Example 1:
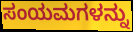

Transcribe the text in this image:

ಸಂಯಮಗಳನ್ನು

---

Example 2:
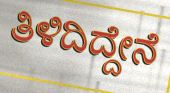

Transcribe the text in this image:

ತಿಳಿದಿದ್ದೇನೆ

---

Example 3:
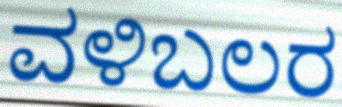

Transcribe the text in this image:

ವಳಿಬಲರ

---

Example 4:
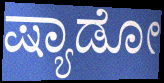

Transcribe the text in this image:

ಷ್ಯಾಡೋ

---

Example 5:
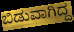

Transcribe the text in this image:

ಬಿಡುವಾಗಿದ್ದ